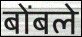
बोंबले